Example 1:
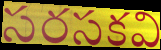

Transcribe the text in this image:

సరసకవి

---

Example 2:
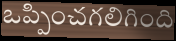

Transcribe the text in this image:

ఒప్పించగలిగింది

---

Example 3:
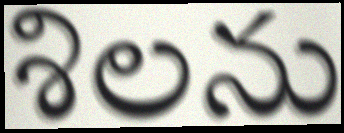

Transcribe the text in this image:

శిలను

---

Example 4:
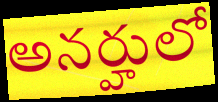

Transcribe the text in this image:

అనర్హులో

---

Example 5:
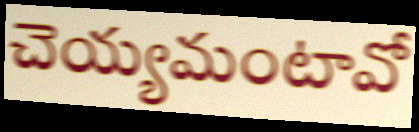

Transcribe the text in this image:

చెయ్యమంటావో